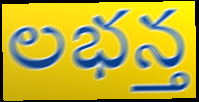
లభన్త